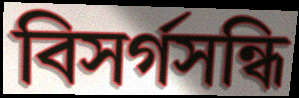
বিসর্গসন্ধি